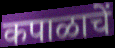
कपाळाचें